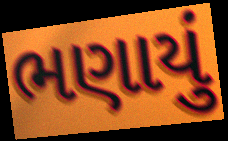
ભણાયું